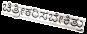
ಚಿತ್ರೀಕರಿಸಬೇಕಿತ್ತು